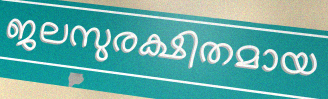
ജലസുരക്ഷിതമായ